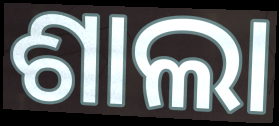
ଶାଲା